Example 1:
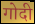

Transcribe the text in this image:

गोदी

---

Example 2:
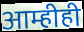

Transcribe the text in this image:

आम्हीही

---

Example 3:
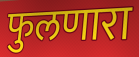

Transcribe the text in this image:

फुलणारा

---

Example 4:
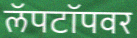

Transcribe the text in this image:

लॅपटॉपवर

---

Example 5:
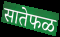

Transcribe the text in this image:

सातेफळ